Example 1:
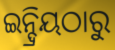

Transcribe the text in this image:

ଇନ୍ଦ୍ରିୟଠାରୁ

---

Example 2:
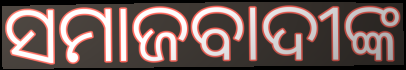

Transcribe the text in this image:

ସମାଜବାଦୀଙ୍କ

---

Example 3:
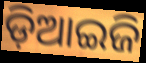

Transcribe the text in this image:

ଡ଼ିଆଇଜି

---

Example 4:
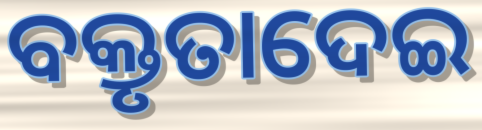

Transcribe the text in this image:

ବକ୍ତୃତାଦେଇ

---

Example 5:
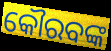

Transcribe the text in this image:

କୌରବଙ୍କ